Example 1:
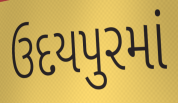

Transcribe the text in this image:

ઉદયપુરમાં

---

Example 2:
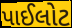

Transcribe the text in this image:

પાઈલોટ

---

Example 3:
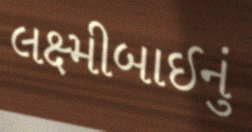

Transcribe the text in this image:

લક્ષ્મીબાઈનું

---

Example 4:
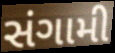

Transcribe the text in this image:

સંગામી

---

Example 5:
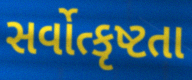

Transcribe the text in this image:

સર્વોત્કૃષ્ટતા